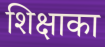
शिक्षाका